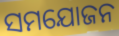
ସମଯୋଜନ